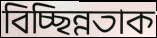
বিচ্ছিন্নতাক